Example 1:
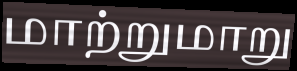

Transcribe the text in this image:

மாற்றுமாறு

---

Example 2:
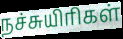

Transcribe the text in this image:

நச்சுயிரிகள்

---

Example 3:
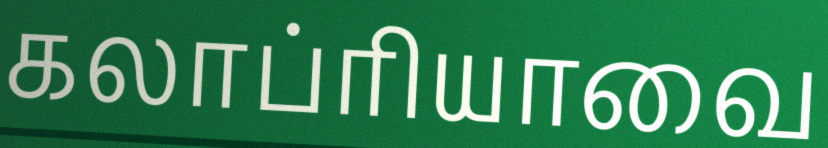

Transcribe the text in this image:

கலாப்ரியாவை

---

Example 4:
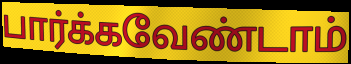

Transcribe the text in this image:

பார்க்கவேண்டாம்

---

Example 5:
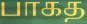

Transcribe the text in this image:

பாகத